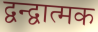
द्वन्द्वात्मक